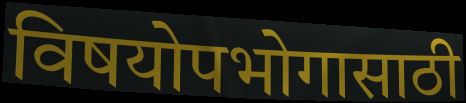
विषयोपभोगासाठी